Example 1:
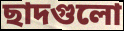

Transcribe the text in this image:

ছাদগুলো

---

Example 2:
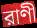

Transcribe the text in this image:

রাণী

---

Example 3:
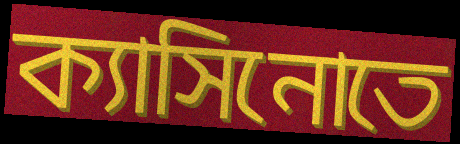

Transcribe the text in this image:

ক্যাসিনোতে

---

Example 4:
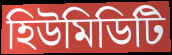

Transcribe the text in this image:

হিউমিডিটি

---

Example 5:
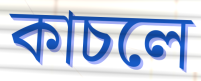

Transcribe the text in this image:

কাচলে